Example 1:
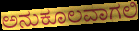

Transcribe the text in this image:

ಅನುಕೂಲವಾಗಲಿ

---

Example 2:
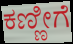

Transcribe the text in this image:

ಕಣ್ಣೀಗೆ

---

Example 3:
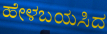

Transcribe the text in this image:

ಹೇಳಬಯಸಿದ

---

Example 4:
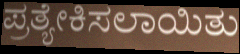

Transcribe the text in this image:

ಪ್ರತ್ಯೇಕಿಸಲಾಯಿತು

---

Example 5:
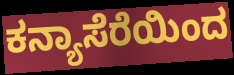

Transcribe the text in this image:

ಕನ್ಯಾಸೆರೆಯಿಂದ